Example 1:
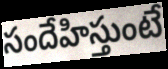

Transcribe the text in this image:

సందేహిస్తుంటే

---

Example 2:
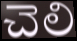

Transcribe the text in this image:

చెలి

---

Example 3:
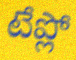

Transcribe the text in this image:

టేప్లో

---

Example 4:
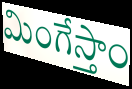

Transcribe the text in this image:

మింగేస్తాం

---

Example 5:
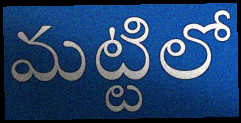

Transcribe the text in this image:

మట్టిలో